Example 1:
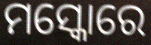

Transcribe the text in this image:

ମସ୍କୋରେ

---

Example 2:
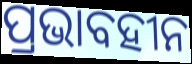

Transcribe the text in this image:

ପ୍ରଭାବହୀନ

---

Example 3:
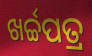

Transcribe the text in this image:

ଖର୍ଚ୍ଚପତ୍ର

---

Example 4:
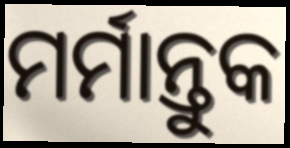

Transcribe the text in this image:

ମର୍ମାନ୍ତୁକ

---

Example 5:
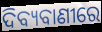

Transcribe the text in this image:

ଦିବ୍ୟବାଣୀରେ